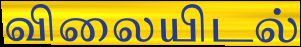
விலையிடல்